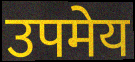
उपमेय